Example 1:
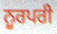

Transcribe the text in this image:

ਨੂਰਪਰੀ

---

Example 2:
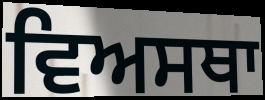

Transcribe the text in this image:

ਵਿਅਸਥਾ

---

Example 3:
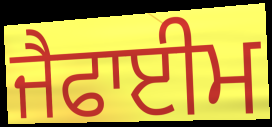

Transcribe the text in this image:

ਜੈਫਾਈਮ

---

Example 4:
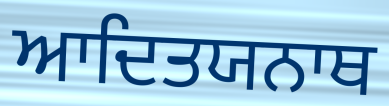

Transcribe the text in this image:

ਆਦਿਤਯਨਾਥ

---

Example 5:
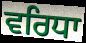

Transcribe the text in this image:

ਵਰਿਧਾ